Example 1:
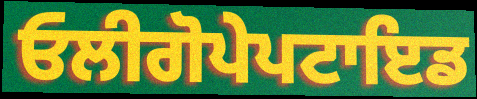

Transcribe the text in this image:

ਓਲੀਗੋਪੇਪਟਾਇਡ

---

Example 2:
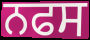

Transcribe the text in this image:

ਨਫਸ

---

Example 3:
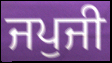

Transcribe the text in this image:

ਜਪੁਜੀ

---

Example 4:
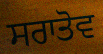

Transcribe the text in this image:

ਸਰਾਤੋਵ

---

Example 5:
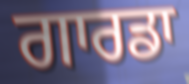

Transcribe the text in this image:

ਗਾਰਡਾ